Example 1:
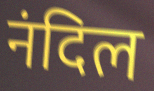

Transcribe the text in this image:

नंदिल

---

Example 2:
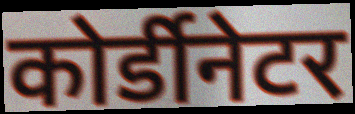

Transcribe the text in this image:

कोर्डीनेटर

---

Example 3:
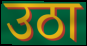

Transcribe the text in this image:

उठा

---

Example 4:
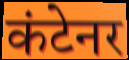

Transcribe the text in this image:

कंटेनर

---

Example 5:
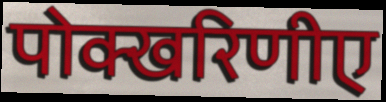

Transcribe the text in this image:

पोक्खरिणीए